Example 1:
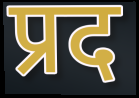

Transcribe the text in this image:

प्रद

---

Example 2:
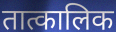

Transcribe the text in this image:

तात्कालिक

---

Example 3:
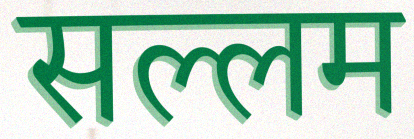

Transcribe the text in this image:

सल्‍लम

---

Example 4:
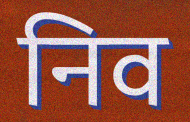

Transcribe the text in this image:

निव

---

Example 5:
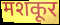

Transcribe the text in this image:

मशकूर